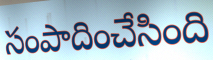
సంపాదించేసింది